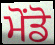
ਮੋਂਡੋ